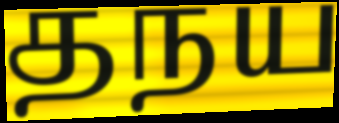
தநய